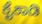
ಕೈಕಾಡಿ